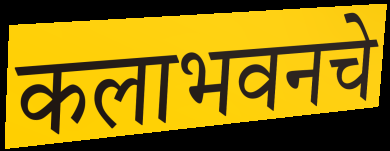
कलाभवनचे